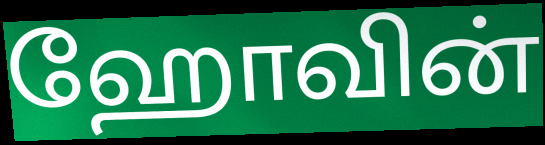
ஹோவின்